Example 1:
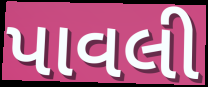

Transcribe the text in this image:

પાવલી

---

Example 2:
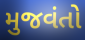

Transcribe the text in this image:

મુજવંતો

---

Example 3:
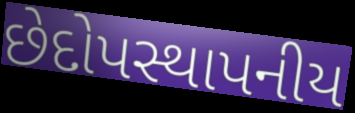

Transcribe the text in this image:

છેદોપસ્થાપનીય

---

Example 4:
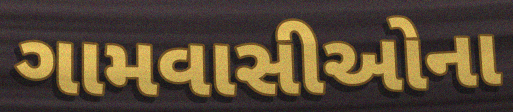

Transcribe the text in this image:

ગામવાસીઓના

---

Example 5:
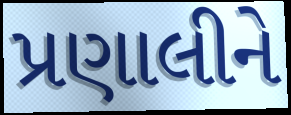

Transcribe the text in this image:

પ્રણાલીને